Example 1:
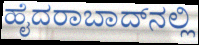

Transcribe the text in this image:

ಹೈದರಾಬಾದ್‌ನಲ್ಲಿ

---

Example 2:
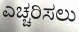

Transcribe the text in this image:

ಎಚ್ಚರಿಸಲು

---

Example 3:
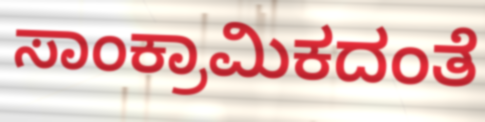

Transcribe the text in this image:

ಸಾಂಕ್ರಾಮಿಕದಂತೆ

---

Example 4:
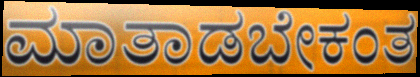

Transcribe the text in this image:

ಮಾತಾಡಬೇಕಂತ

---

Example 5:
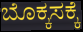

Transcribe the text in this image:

ಬೊಕ್ಕಸಕ್ಕೆ